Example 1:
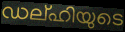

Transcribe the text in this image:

ഡല്ഹിയുടെ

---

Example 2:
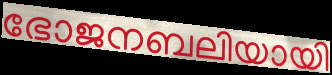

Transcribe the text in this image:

ഭോജനബലിയായി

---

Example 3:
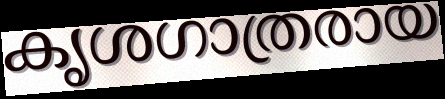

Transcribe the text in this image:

കൃശഗാത്രരായ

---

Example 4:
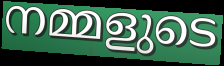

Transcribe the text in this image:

നമ്മളുടെ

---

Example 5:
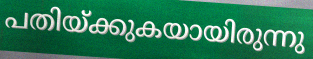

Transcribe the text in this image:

പതിയ്ക്കുകയായിരുന്നു